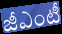
జీఎంటీ